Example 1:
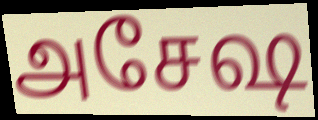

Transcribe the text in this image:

அசேஷ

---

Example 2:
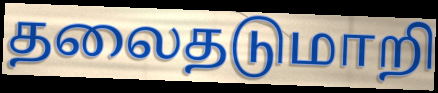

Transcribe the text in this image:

தலைதடுமாறி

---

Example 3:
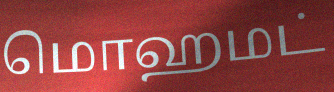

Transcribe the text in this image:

மொஹமட்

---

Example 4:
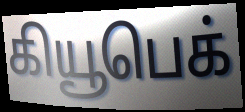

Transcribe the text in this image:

கியூபெக்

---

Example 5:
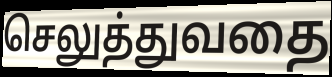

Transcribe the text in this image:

செலுத்துவதை